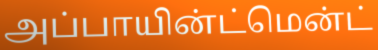
அப்பாயின்ட்மென்ட்